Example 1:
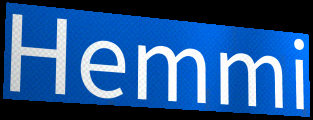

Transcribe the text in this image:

Hemmi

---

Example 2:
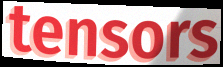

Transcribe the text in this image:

tensors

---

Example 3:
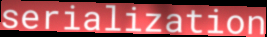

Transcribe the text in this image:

serialization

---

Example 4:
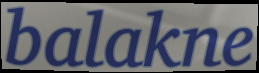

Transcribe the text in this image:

balakne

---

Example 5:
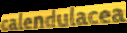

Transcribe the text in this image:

calendulacea